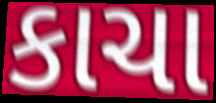
કાચા